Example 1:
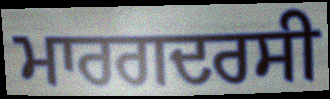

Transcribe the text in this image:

ਮਾਰਗਦਰਸੀ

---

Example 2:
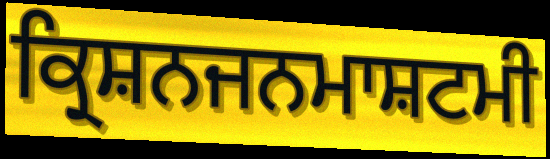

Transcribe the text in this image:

ਕ੍ਰਿਸ਼ਨਜਨਮਾਸ਼ਟਮੀ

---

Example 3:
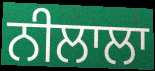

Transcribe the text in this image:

ਨੀਲਾਲਾ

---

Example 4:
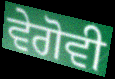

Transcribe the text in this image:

ਵੇਗੋਵੀ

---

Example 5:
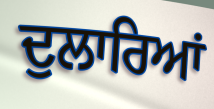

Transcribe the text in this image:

ਦੁਲਾਰਿਆਂ